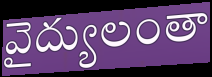
వైద్యులంతా